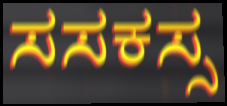
ಸಸಕಸ್ಸ